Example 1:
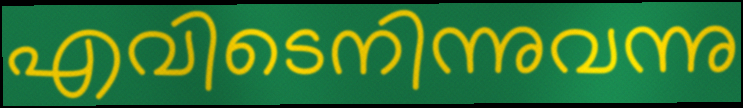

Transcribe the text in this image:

എവിടെനിന്നുവന്നു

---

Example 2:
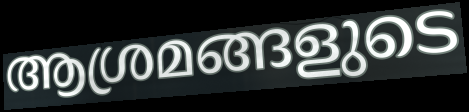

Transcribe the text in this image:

ആശ്രമങ്ങളുടെ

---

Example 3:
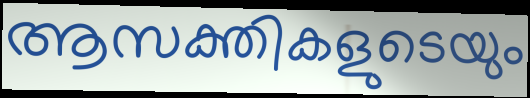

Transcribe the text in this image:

ആസക്തികളുടെയും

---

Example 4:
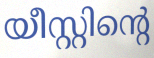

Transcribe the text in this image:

യീസ്റ്റിന്റെ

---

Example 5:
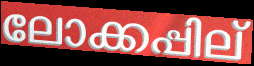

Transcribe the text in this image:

ലോക്കപ്പില്